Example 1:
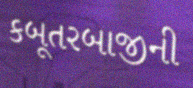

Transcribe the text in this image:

કબૂતરબાજીની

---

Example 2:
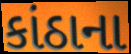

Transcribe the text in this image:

કાંઠાના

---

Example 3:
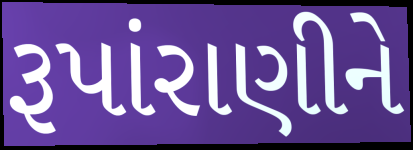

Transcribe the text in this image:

રૂપાંરાણીને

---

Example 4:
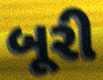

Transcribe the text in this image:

બૂરી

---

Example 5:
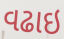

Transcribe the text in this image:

વઢાઇ